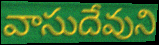
వాసుదేవుని